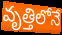
వృత్తిలోనే